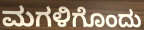
ಮಗಳಿಗೊಂದು